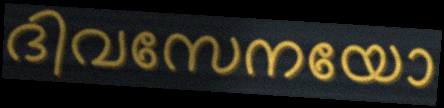
ദിവസേനയോ